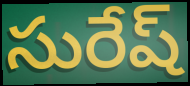
సురేష్